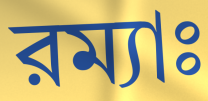
রম্যাঃ